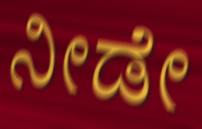
ನೀಡೇ